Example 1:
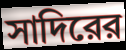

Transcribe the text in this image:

সাদিরের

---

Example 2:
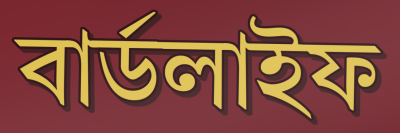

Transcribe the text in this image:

বার্ডলাইফ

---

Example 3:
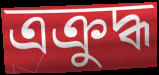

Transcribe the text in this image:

ত্রক্রুদ্ধ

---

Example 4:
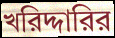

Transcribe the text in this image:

খরিদ্দারির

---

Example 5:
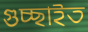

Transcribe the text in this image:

গুচ্ছাইত